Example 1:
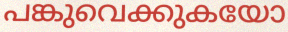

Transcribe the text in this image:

പങ്കുവെക്കുകയോ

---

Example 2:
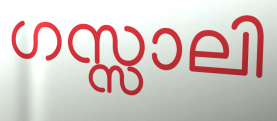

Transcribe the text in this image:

ഗസ്സാലി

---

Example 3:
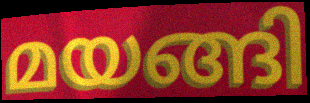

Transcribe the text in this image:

മയങ്ങി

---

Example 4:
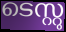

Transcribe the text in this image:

ടെസ്റ്റു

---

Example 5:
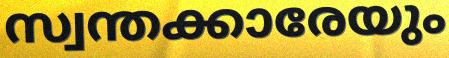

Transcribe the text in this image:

സ്വന്തക്കാരേയും